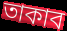
তাকাব